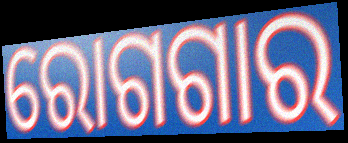
ରୋଗଗାର